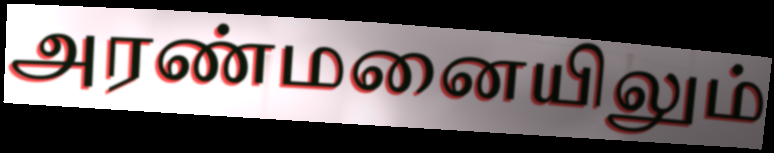
அரண்மனையிலும்